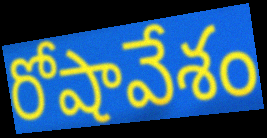
రోషావేశం